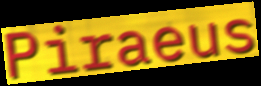
Piraeus